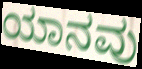
ಯಾನವು